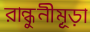
রান্ধুনীমূড়া